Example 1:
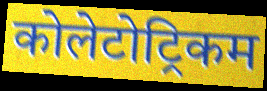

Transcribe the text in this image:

कोलेटोट्रिकम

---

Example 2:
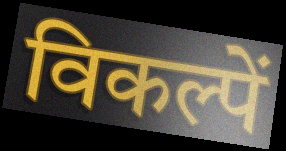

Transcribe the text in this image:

विकल्पें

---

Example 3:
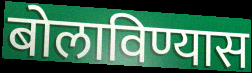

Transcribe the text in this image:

बोलाविण्यास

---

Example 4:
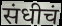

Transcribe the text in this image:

संधीचं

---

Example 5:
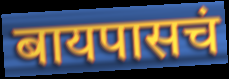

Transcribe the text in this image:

बायपासचं